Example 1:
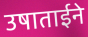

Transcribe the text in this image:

उषाताईने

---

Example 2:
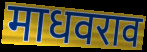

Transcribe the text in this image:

माधवराव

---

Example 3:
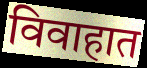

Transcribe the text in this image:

विवाहात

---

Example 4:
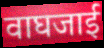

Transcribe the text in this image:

वाघजाई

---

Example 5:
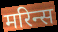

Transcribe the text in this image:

मरिन्स